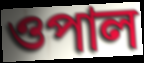
ওপাল